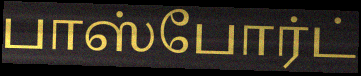
பாஸ்போர்ட்